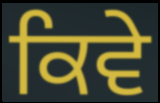
ਕਿਵੇ